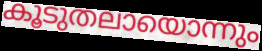
കൂടുതലായൊന്നും